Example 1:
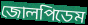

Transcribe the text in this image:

জোলপিডেম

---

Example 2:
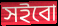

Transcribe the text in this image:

সইবো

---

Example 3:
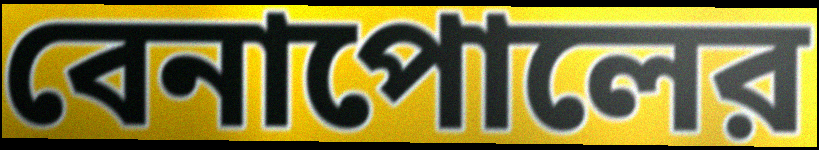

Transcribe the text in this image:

বেনাপোলের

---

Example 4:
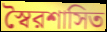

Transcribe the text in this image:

স্বৈরশাসিত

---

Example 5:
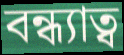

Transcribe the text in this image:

বন্ধ্যাত্ব